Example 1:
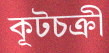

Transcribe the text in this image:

কূটচক্রী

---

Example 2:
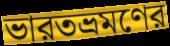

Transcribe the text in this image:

ভারতভ্রমণের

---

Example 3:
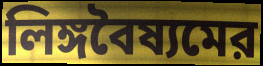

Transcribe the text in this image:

লিঙ্গবৈষ্যমের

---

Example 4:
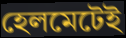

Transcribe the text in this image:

হেলমেটেই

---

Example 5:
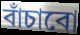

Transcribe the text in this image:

বাঁচাবো